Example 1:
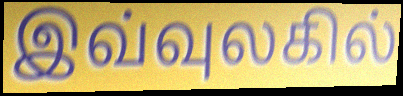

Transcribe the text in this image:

இவ்வுலகில்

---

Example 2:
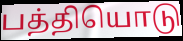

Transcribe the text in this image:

பத்தியொடு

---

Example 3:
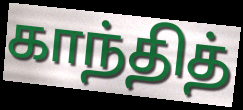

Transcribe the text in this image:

காந்தித்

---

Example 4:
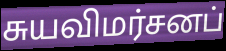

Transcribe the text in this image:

சுயவிமர்சனப்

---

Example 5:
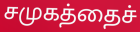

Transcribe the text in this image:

சமுகத்தைச்